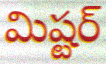
మిష్టర్